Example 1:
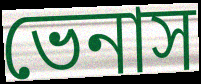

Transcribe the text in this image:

ভেনাস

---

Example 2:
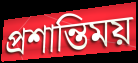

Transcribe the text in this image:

প্রশান্তিময়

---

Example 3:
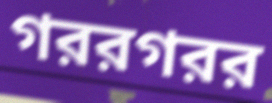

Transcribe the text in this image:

গররগরর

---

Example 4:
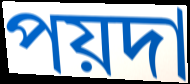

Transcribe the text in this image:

পয়দা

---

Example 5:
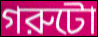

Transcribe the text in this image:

গরুটো